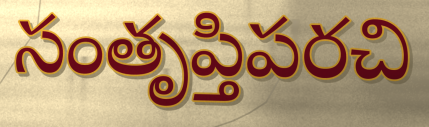
సంతృప్తిపరచి